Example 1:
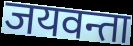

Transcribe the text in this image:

जयवन्ता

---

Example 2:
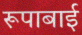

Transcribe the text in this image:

रूपाबाई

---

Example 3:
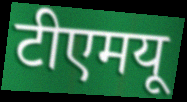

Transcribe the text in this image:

टीएमयू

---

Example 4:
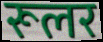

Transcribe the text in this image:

रूलर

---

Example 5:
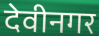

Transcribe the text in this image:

देवीनगर